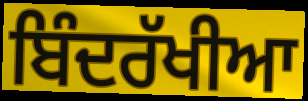
ਬਿੰਦਰੱਖੀਆ